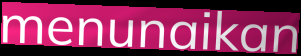
menunaikan